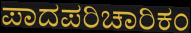
ಪಾದಪರಿಚಾರಿಕಂ